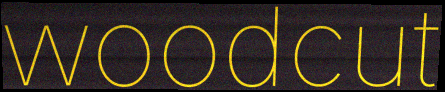
woodcut